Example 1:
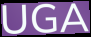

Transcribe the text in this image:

UGA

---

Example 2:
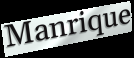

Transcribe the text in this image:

Manrique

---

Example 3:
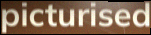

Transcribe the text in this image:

picturised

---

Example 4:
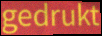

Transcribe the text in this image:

gedrukt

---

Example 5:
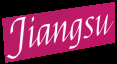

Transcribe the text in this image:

Jiangsu